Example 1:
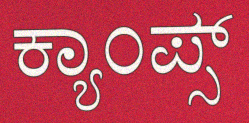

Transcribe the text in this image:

ಕ್ಯಾಂಪ್ಸ್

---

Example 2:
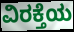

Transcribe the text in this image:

ವಿರಕ್ತೆಯ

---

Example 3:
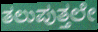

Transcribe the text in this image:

ತಲುಪುತ್ತಲೇ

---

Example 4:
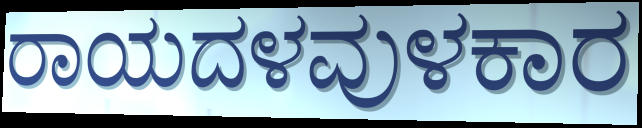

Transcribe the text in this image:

ರಾಯದಳವುಳಕಾರ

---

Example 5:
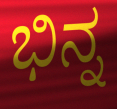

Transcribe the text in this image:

ಭಿನ್ನ